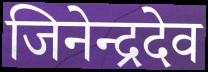
जिनेन्द्रदेव